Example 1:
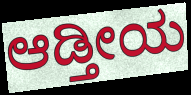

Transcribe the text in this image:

ಆಡ್ತೀಯ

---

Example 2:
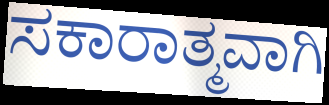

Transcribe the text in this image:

ಸಕಾರಾತ್ಮವಾಗಿ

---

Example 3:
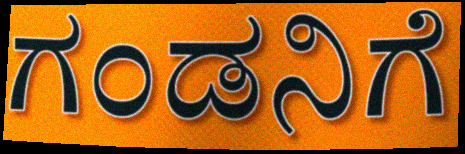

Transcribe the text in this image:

ಗಂಡನಿಗೆ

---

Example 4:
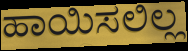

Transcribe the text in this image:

ಹಾಯಿಸಲಿಲ್ಲ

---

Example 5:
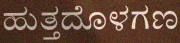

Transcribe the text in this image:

ಹುತ್ತದೊಳಗಣ